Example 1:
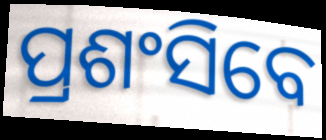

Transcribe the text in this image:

ପ୍ରଶଂସିବେ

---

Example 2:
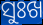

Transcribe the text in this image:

ସୁଃଖ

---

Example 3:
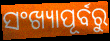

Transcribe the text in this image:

ସଂଖ୍ୟାପୂର୍ବରୁ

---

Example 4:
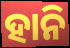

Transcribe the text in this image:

ହାନି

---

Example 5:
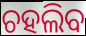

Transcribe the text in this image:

ଚହଲିବ